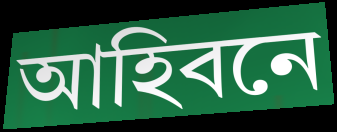
আহিবনে